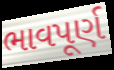
ભાવપૂર્ણ